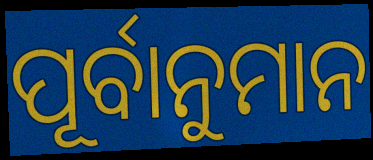
ପୂର୍ବାନୁମାନ